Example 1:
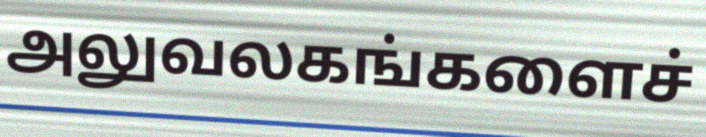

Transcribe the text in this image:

அலுவலகங்களைச்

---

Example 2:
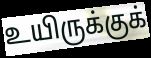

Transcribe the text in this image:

உயிருக்குக்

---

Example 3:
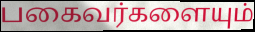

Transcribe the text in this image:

பகைவர்களையும்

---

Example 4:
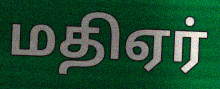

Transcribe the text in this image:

மதிஏர்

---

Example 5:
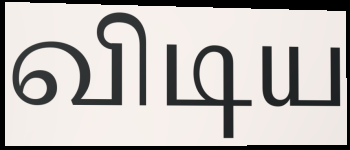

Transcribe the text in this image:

விடிய